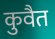
कुवैत